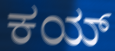
ಕಯ್